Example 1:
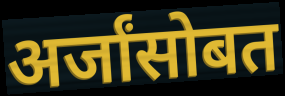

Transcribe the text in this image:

अर्जांसोबत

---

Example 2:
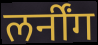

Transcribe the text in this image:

लर्नींग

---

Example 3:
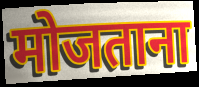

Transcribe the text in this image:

मोजताना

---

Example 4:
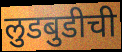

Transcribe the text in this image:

लुडबुडीची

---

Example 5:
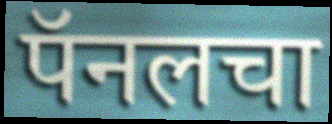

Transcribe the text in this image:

पॅनलचा